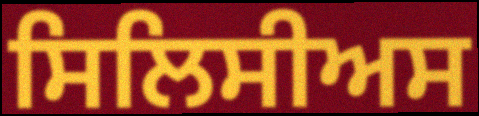
ਸਿਲਿਸੀਅਸ